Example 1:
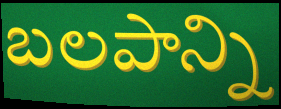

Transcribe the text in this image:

బలపాన్ని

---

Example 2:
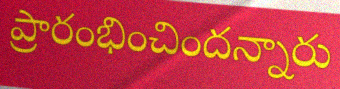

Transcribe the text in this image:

ప్రారంభించిందన్నారు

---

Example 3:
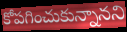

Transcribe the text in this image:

కోపగించుకున్నానని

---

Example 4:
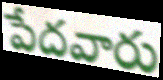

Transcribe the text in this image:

పేదవారు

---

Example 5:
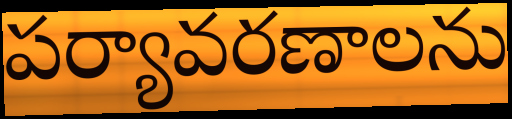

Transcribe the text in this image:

పర్యావరణాలను